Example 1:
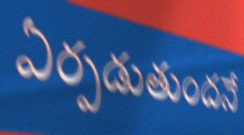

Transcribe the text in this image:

ఏర్పడుతుందనే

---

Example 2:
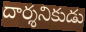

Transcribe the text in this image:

దార్శనికుడు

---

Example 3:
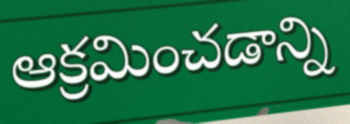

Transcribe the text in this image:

ఆక్రమించడాన్ని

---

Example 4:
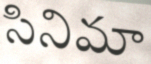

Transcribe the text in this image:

సినిమా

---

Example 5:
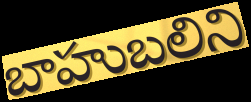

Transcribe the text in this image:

బాహుబలిని